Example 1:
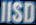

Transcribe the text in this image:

IISD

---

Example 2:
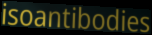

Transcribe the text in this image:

isoantibodies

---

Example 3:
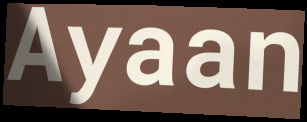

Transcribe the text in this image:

Ayaan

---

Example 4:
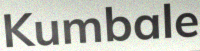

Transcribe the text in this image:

Kumbale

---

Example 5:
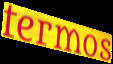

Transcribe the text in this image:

termos